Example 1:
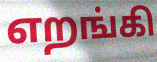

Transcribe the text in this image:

எறங்கி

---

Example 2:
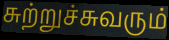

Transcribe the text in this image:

சுற்றுச்சுவரும்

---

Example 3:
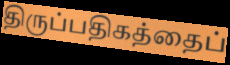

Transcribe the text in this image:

திருப்பதிகத்தைப்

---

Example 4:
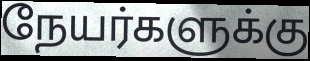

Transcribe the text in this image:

நேயர்களுக்கு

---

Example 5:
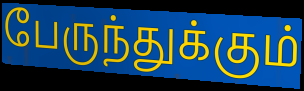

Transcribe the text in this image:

பேருந்துக்கும்